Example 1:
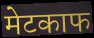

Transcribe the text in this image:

मेटकाफ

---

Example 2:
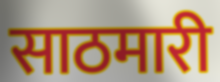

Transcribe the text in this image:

साठमारी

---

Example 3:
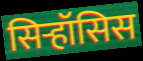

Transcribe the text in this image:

सिऱ्हॉसिस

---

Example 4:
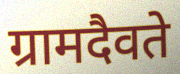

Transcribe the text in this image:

ग्रामदैवते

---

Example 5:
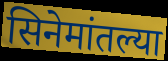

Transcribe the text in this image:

सिनेमांतल्या